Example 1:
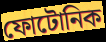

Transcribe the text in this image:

ফোটোনিক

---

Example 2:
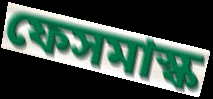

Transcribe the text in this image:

ফেসমাস্ক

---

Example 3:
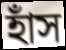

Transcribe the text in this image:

হাঁস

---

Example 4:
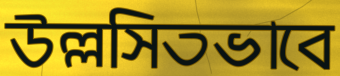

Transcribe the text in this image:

উল্লসিতভাবে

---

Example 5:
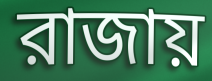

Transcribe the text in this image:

রাজায়